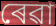
ৰেৱা